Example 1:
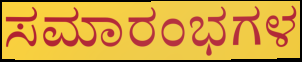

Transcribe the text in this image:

ಸಮಾರಂಭಗಳ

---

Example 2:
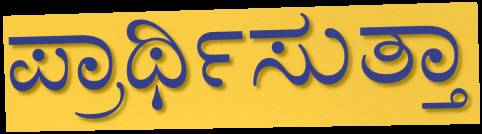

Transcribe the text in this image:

ಪ್ರಾರ್ಥಿಸುತ್ತಾ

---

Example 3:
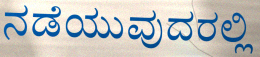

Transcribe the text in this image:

ನಡೆಯುವುದರಲ್ಲಿ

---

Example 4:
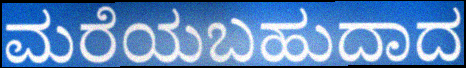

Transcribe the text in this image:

ಮರೆಯಬಹುದಾದ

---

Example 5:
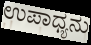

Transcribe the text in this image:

ಉಪಾಧ್ಯನು